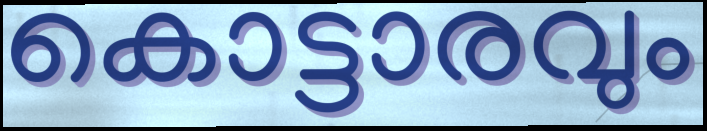
കൊട്ടാരവും